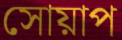
সোয়াপ